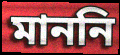
মাননি